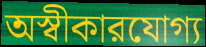
অস্বীকারযোগ্য